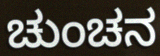
ಚುಂಚನ